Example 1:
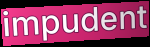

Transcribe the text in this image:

impudent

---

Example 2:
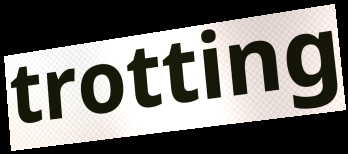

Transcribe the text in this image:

trotting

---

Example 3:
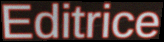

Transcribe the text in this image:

Editrice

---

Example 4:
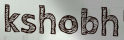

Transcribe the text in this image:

kshobh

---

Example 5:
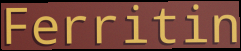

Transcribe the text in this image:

Ferritin